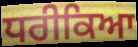
ਧਰੀਕਿਆ